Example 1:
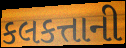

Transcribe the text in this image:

કલકત્તાની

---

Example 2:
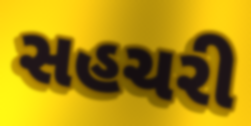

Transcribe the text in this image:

સહચરી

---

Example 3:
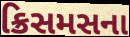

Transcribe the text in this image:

ક્રિસમસના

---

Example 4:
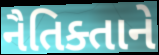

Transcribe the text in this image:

નૈતિક્તાને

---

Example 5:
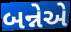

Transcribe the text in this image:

બન્નેએ